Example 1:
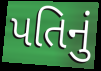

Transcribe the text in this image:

પતિનું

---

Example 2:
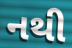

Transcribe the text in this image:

નથી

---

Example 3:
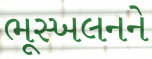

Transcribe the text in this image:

ભૂસ્ખલનને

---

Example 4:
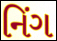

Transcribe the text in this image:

નિંગ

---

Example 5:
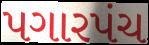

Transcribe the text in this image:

પગારપંચ